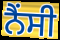
ਨੈਂਸੀ